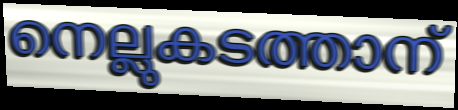
നെല്ലുകടത്താന്